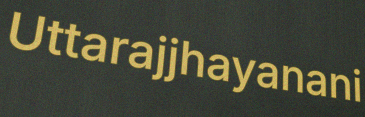
Uttarajjhayanani